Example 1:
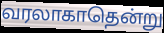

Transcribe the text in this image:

வரலாகாதென்று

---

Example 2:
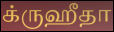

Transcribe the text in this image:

க்ருஹீதா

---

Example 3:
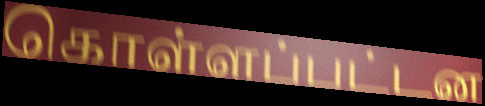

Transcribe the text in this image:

கொள்ளப்பட்டன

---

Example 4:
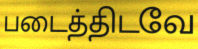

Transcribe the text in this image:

படைத்திடவே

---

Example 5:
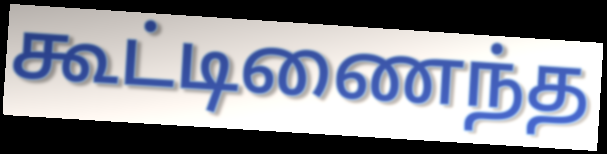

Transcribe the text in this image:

கூட்டிணைந்த